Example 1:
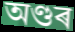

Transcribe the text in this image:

অণ্ডৰ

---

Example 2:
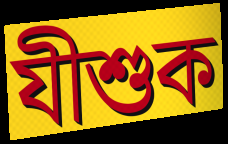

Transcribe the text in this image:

যীশুক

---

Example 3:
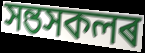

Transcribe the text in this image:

সন্তসকলৰ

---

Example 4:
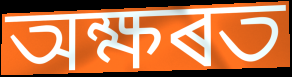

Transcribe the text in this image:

অক্ষৰত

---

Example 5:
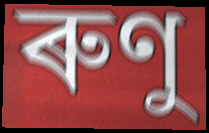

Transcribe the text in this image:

ৰুণু